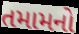
તમામનો